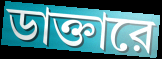
ডাক্তারে